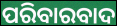
ପରିବାରବାଦ